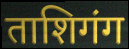
ताशिगंग